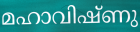
മഹാവിഷ്ണു